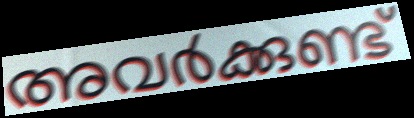
അവർക്കുണ്ട്